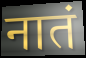
नातं